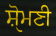
ਸ਼ੑੋਮਣੀ